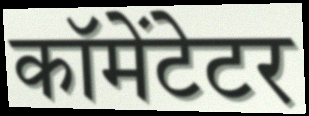
कॉमेंटेटर